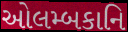
ઓલમ્બકાનિ